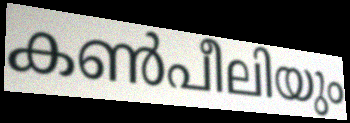
കൺപീലിയും